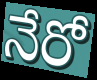
నేరో